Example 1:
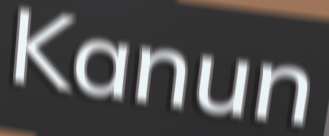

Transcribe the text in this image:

Kanun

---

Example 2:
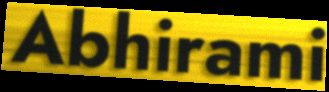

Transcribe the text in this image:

Abhirami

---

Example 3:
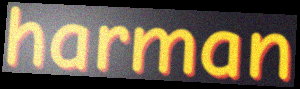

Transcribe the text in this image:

harman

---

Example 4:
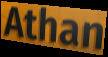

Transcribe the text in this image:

Athan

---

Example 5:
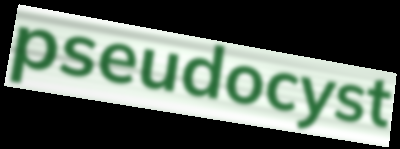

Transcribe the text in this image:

pseudocyst